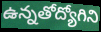
ఉన్నతోద్యోగిని